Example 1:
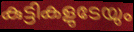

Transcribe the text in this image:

കുട്ടികളുടേയും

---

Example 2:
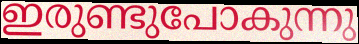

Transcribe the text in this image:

ഇരുണ്ടുപോകുന്നു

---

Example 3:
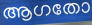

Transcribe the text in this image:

ആഗതോ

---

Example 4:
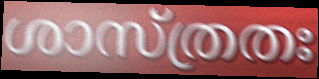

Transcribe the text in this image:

ശാസ്ത്രതഃ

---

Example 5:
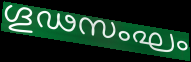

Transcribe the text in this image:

ഗൂഢസംഘം